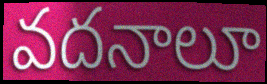
వదనాలూ